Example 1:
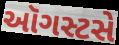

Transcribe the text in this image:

ઑગસ્ટસે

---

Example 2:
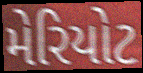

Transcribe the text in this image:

મેરિયોટ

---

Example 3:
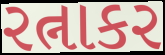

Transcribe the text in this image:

રત્નાકર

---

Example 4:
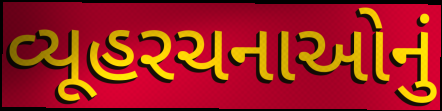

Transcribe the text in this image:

વ્યૂહરચનાઓનું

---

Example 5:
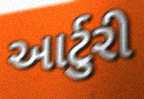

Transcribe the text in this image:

આર્ટુરી